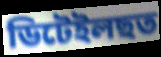
ডিটেইলছত